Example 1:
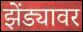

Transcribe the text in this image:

झेंड्यावर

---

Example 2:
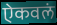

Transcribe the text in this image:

ऐकवलं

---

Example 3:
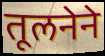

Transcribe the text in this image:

तूलनेने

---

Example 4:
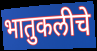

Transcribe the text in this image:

भातुकलीचे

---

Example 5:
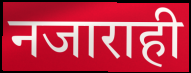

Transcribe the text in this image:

नजाराही